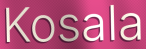
Kosala